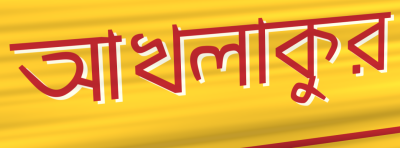
আখলাকুর